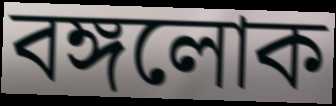
বঙ্গলোক